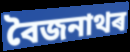
বৈজনাথৰ